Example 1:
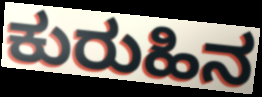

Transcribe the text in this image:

ಕುರುಹಿನ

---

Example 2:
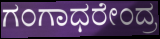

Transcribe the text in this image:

ಗಂಗಾಧರೇಂದ್ರ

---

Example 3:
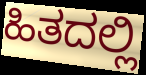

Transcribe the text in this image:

ಹಿತದಲ್ಲಿ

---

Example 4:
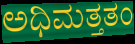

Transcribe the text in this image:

ಅಧಿಮತ್ತತಂ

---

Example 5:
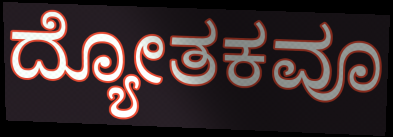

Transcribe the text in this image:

ದ್ಯೋತಕವೂ